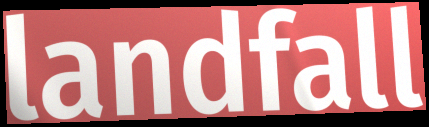
landfall